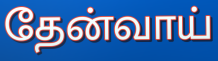
தேன்வாய்